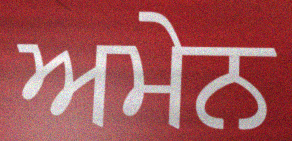
ਅਮੇਨ